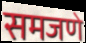
समजणे